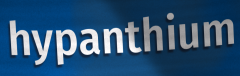
hypanthium